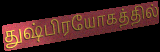
துஷ்பிரயோகத்தில்